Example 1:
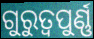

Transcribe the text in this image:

ଗୁରୁତ୍ୱପୁର୍ଣ୍ଣ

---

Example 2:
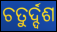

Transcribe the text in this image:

ଚତୁର୍ଦ୍ଦଶ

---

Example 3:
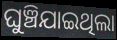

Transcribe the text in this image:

ଘୁଞ୍ଚିଯାଇଥିଲା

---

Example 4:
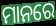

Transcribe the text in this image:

ମାନରେ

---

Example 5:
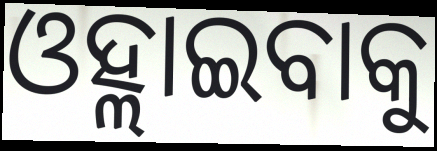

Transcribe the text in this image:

ଓହ୍ଲାଇବାକୁ